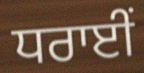
ਧਰਾਈਂ